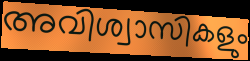
അവിശ്വാസികളും